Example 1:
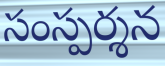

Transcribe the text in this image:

సంస్పర్శన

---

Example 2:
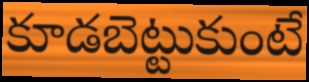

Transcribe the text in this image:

కూడబెట్టుకుంటే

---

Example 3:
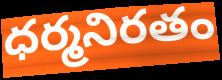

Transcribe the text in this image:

ధర్మనిరతం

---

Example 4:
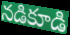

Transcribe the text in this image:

నడికూడి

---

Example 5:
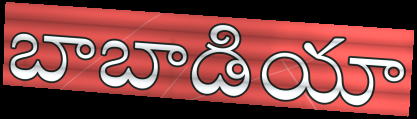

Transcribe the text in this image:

బాబాడియా